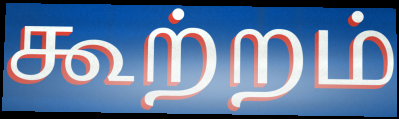
கூற்றம்